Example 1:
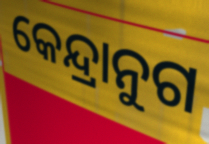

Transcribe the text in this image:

କେନ୍ଦ୍ରାନୁଗ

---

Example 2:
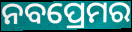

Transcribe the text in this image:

ନବପ୍ରେମର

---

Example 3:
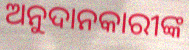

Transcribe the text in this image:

ଅନୁଦାନକାରୀଙ୍କ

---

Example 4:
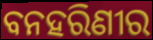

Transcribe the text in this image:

ବନହରିଣୀର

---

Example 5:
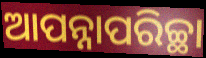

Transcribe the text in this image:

ଆପନ୍ନାପରିଚ୍ଛା